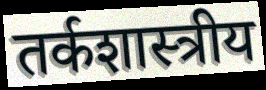
तर्कशास्त्रीय